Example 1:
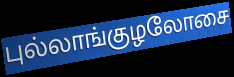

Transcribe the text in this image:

புல்லாங்குழலோசை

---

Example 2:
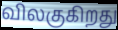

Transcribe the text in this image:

விலகுகிறது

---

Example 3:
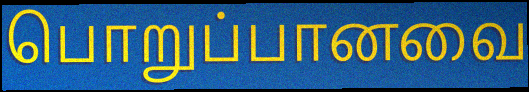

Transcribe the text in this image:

பொறுப்பானவை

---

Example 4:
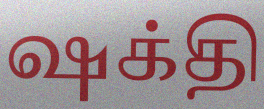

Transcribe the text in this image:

ஷக்தி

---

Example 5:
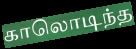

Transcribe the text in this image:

காலொடிந்த